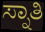
ಸ್ನಾತಿ